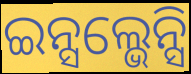
ଇନ୍ସଲ୍ଭେନ୍ସି